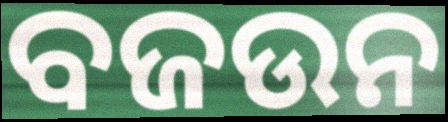
ବଜଉନ